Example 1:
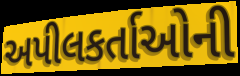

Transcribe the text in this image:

અપીલકર્તાઓની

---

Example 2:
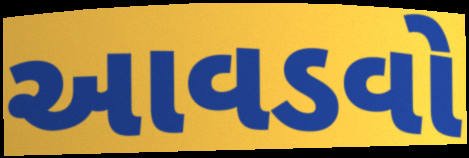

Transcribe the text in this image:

આવડવો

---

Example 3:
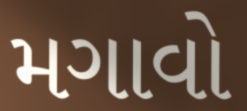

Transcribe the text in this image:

મગાવો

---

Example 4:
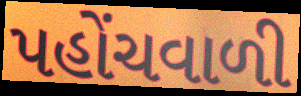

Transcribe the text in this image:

પહોંચવાળી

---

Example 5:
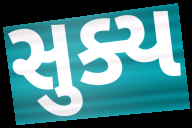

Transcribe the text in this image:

સુક્ય